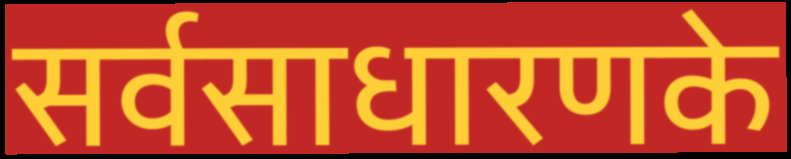
सर्वसाधारणके